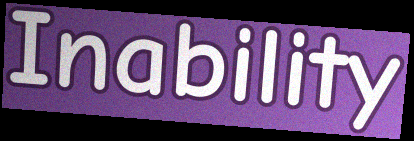
Inability